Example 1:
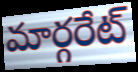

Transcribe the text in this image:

మార్గరేట్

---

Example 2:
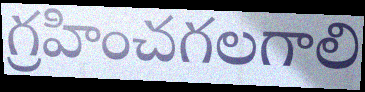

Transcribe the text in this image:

గ్రహించగలగాలి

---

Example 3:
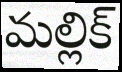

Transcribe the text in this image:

మల్లిక్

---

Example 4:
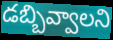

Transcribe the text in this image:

డబ్బివ్వాలని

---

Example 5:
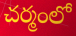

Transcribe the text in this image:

చర్మంలో